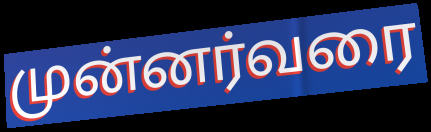
முன்னர்வரை